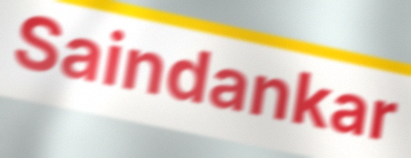
Saindankar